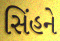
સિંહને